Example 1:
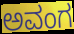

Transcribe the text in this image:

ಅವಂಗ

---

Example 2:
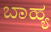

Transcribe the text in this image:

ಬಾಹ್ಯ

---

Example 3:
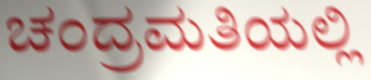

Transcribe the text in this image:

ಚಂದ್ರಮತಿಯಲ್ಲಿ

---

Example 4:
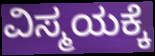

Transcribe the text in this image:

ವಿಸ್ಮಯಕ್ಕೆ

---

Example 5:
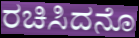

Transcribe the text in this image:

ರಚಿಸಿದನೊ